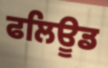
ਫਲਿਊਡ